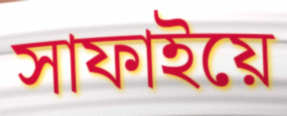
সাফাইয়ে